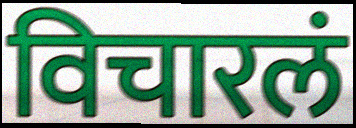
विचारलं